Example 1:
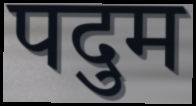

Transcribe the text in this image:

पदुम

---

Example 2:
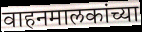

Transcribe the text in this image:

वाहनमालकांच्या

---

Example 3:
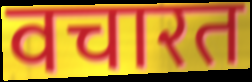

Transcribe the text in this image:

वचारत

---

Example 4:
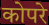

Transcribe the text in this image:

कोपरे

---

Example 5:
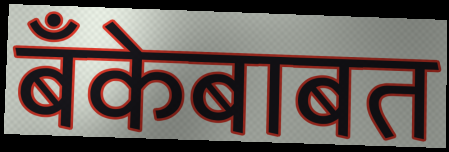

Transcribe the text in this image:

बँकेबाबत